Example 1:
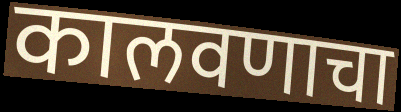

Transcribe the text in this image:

कालवणाचा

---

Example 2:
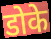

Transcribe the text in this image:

डोके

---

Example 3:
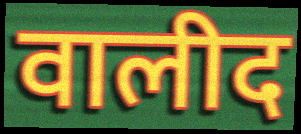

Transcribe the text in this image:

वालीद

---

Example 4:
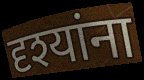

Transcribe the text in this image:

दृश्यांना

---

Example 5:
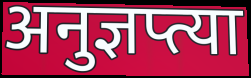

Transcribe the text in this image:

अनुज्ञप्त्या